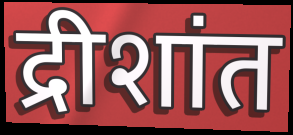
द्रीशांत